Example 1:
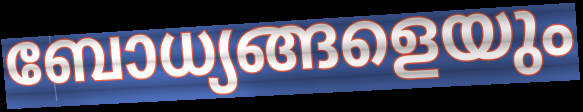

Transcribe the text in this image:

ബോധ്യങ്ങളെയും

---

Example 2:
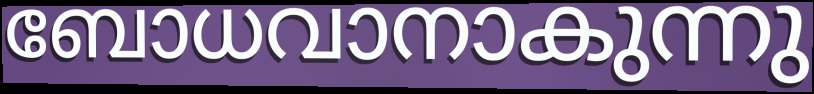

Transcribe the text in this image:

ബോധവാനാകുന്നു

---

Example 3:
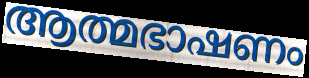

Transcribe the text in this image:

ആത്മഭാഷണം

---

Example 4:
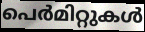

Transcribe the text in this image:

പെർമിറ്റുകൾ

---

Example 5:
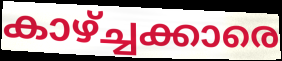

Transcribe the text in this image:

കാഴ്ച്ചക്കാരെ